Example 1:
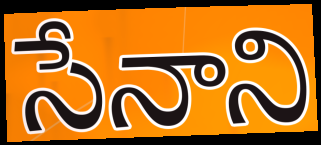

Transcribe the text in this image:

సేనాని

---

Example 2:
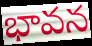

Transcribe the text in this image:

భావన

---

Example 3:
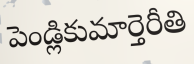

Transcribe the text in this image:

పెండ్లికుమార్తెరీతి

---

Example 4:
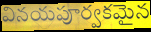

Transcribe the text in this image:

వినయపూర్వకమైన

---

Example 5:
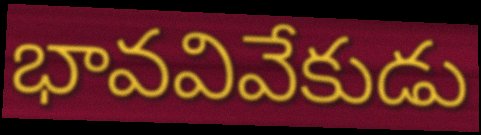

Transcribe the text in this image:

భావవివేకుడు